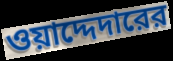
ওয়াদ্দেদারের